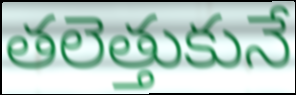
తలెత్తుకునే